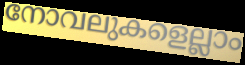
നോവലുകളെല്ലാം